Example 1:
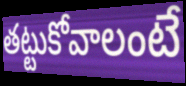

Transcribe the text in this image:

తట్టుకోవాలంటే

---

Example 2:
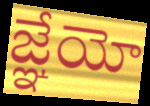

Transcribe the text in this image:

జ్ఞేయో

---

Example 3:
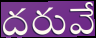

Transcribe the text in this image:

దరువే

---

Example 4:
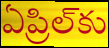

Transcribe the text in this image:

ఏప్రిల్‌కు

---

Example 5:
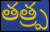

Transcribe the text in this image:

తత్ర్ప